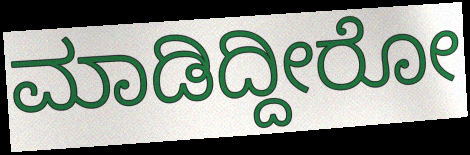
ಮಾಡಿದ್ದೀರೋ